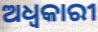
ଅଧ୍ବକାରୀ